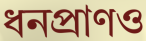
ধনপ্রাণও